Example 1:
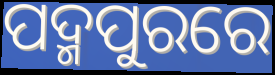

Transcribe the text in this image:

ପଦ୍ମପୁରରେ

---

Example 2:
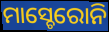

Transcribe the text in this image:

ମାସ୍ଚେରୋନି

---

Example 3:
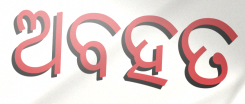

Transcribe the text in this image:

ଅବହତ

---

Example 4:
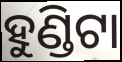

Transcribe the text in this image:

ହୁଣ୍ଡିଟା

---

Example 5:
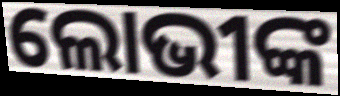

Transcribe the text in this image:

ଲୋଭୀଙ୍କ